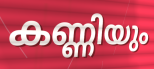
കണ്ണിയും